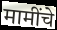
मामींचे